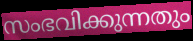
സംഭവിക്കുന്നതും